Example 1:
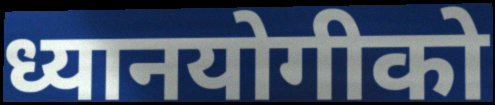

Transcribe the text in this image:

ध्यानयोगीको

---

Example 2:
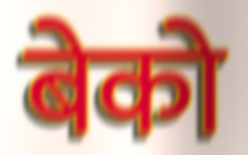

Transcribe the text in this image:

बेको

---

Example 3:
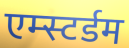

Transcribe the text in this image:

एम्स्टर्डम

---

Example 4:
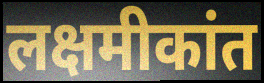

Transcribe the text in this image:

लक्षमीकांत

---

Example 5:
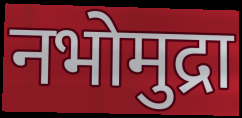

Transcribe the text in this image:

नभोमुद्रा